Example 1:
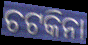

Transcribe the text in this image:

ଚଟକିନା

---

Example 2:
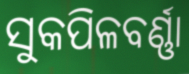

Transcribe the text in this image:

ସୁକପିଳବର୍ଣ୍ଣା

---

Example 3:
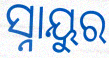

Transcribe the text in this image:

ସ୍ନାୟୁର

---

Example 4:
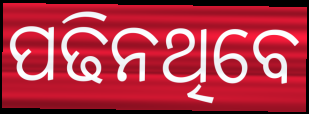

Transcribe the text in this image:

ପଢିନଥିବେ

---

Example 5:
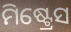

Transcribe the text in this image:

ମିଷ୍ଟ୍ରେସ